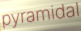
pyramidal